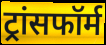
ट्रांसफॉर्म